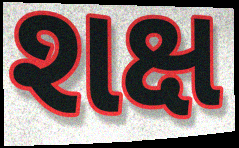
શક્ષ